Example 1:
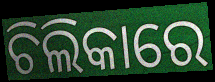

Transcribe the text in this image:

ଚିଲିକାରେ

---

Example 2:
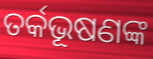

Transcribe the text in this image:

ତର୍କଭୂଷଣଙ୍କ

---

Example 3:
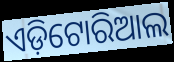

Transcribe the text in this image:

ଏଡ଼ିଟୋରିଆଲ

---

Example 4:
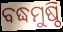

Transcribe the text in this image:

ବଦ୍ଧମୁଷ୍ଠି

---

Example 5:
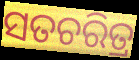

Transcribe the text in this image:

ସତଚରିତ୍ର